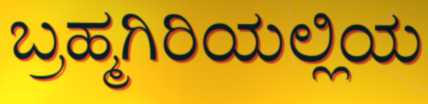
ಬ್ರಹ್ಮಗಿರಿಯಲ್ಲಿಯ